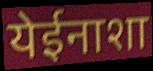
येईनाशा